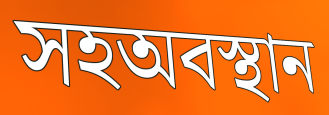
সহঅবস্থান